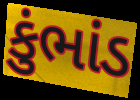
કુંભાંડ